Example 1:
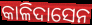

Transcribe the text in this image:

କାଳିଦାସେନ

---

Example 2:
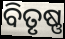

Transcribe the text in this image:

ବିତୃଷ୍ଣ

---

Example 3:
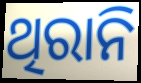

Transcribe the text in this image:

ଥିରାନି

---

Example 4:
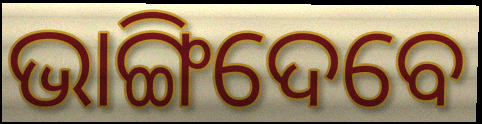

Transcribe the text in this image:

ଭାଙ୍ଗିଦେବେ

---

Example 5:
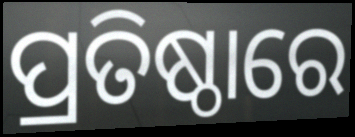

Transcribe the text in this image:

ପ୍ରତିଷ୍ଠାରେ